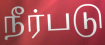
நீர்படு